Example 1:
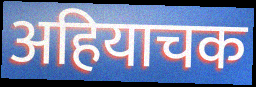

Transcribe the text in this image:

अहियाचक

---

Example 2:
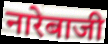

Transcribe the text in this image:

नारेबाजी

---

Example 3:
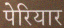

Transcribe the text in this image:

पेरियार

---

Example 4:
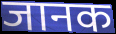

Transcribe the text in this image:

जानक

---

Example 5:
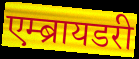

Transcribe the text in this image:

एम्ब्रायडरी